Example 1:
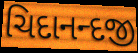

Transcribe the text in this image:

ચિદાનન્દજી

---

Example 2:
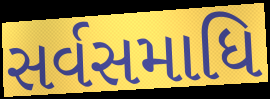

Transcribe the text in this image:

સર્વસમાધિ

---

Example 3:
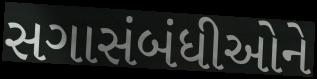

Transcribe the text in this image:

સગાસંબંધીઓને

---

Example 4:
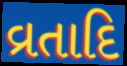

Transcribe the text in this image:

વ્રતાદિ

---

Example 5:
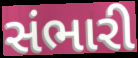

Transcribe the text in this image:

સંભારી